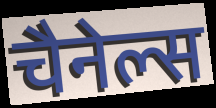
चैनेल्स